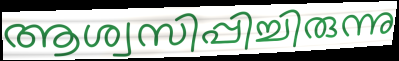
ആശ്വസിപ്പിച്ചിരുന്നു